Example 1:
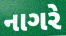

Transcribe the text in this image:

નાગરે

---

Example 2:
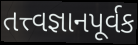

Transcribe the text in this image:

તત્ત્વજ્ઞાનપૂર્વક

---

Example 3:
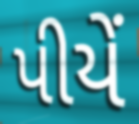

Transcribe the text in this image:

પીયેં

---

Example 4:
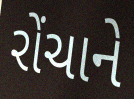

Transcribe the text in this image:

રોંચાને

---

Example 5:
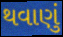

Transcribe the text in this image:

થવાણું